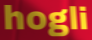
hogli